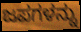
ಜಪಗಳನ್ನು